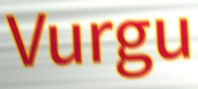
Vurgu